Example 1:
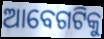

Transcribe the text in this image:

ଆବେଗଟିକୁ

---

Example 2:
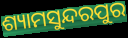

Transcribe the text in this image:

ଶ୍ୟାମସୁନ୍ଦରପୁର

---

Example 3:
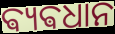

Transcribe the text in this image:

ଵ୍ୟଵଧାନ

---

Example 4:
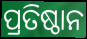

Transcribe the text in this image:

ପ୍ରତିଷ୍ଠାନ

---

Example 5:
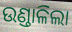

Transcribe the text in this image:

ଉଣ୍ଡାଳିଲା